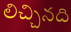
లిచ్చినది